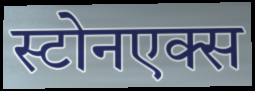
स्टोनएक्स